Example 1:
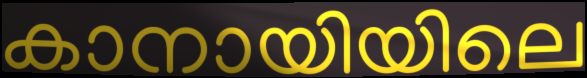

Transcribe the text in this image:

കാനായിയിലെ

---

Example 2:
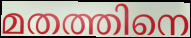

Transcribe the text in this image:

മതത്തിനെ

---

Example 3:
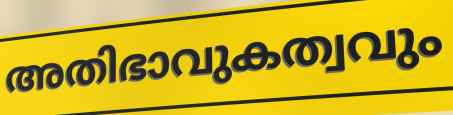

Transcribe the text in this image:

അതിഭാവുകത്വവും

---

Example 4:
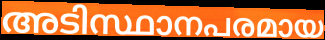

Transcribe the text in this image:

അടിസ്ഥാനപരമായ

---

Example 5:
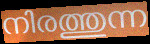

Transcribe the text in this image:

നിരത്തുന്ന